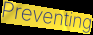
Preventing